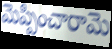
మెప్పించారామె